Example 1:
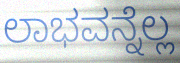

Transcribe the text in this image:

ಲಾಭವನ್ನೆಲ್ಲ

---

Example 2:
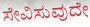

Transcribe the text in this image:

ಸೇವಿಸುವುದೇ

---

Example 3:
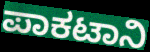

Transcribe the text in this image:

ಪಾಕಟಾನಿ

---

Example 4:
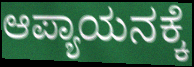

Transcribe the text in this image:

ಆಪ್ಯಾಯನಕ್ಕೆ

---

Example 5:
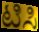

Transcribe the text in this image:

ಟಿಸಿ